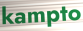
kampto